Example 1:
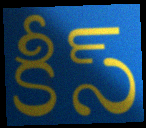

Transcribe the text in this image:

కీస్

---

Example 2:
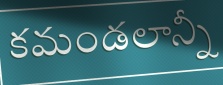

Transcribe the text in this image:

కమండలాన్నీ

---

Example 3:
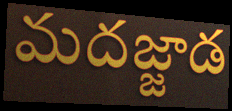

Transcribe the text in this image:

మదజ్జాడ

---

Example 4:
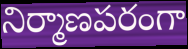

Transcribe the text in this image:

నిర్మాణపరంగా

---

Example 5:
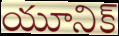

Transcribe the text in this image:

యూనిక్